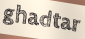
ghadtar